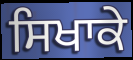
ਸਿਖਾਕੇ